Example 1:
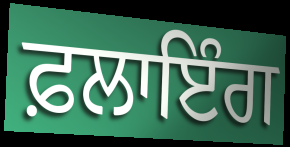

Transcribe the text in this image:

ਫ਼ਲਾਇੰਗ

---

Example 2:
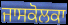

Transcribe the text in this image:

ਜਾਸਕੋਲਕਾ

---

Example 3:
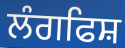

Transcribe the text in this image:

ਲੰਗਫਿਸ਼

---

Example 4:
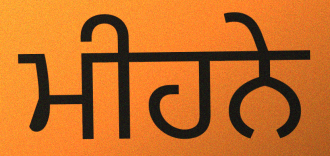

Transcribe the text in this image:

ਮੀਹਨੇ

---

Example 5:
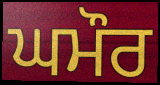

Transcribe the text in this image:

ਘਮੌਰ